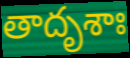
తాదృశాః